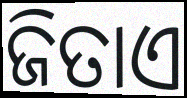
ଜିତାଏ